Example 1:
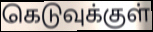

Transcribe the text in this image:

கெடுவுக்குள்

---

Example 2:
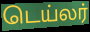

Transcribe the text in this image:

டெய்லர்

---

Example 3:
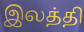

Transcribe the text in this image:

இலத்தி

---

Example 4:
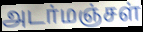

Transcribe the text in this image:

அடர்மஞ்சள்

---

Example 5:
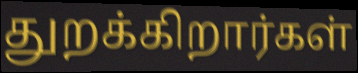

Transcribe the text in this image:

துறக்கிறார்கள்